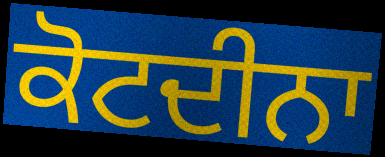
ਕੋਟਦੀਨਾ